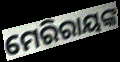
ମେରିରାୟଙ୍କ